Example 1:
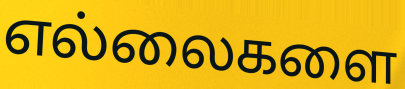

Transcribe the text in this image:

எல்லைகளை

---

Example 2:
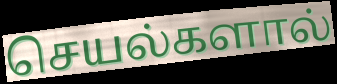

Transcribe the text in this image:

செயல்களால்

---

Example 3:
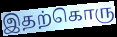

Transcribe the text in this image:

இதற்கொரு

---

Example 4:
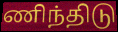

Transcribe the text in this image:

ணிந்திடு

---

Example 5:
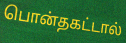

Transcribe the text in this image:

பொன்தகட்டால்